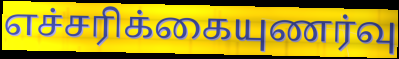
எச்சரிக்கையுணர்வு